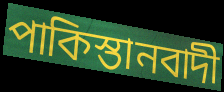
পাকিস্তানবাদী